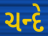
ચન્દે